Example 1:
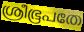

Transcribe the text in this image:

ശ്രീഭൂപതേ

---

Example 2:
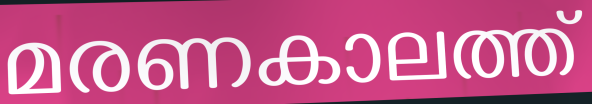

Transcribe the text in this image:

മരണകാലത്ത്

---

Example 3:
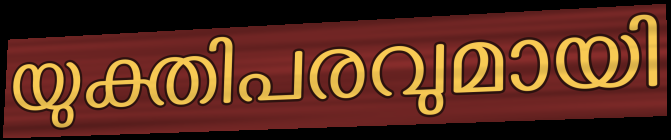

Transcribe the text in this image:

യുക്തിപരവുമായി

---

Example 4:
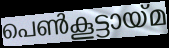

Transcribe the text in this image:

പെൺകൂട്ടായ്മ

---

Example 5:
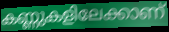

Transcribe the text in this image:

കണ്ണുകളിലേക്കാണ്